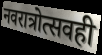
नवरात्रोत्सवही